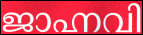
ജാഹ്നവി